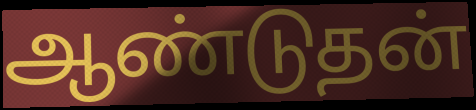
ஆண்டுதன்